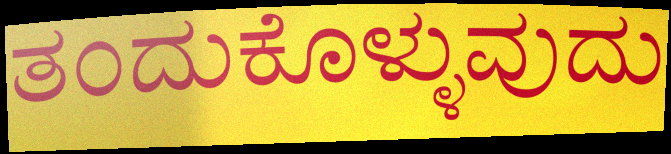
ತಂದುಕೊಳ್ಳುವುದು